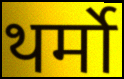
थर्मो